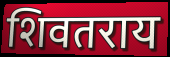
शिवतराय